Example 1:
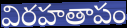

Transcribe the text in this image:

విరహతాపం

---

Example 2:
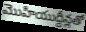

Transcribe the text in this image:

మొహియుద్దీన్లతో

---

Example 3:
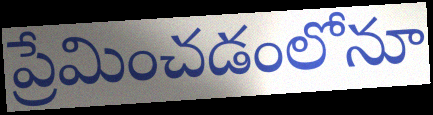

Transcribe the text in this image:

ప్రేమించడంలోనూ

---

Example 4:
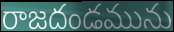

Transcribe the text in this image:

రాజదండమును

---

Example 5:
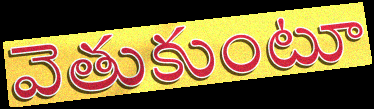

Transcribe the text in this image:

వెతుకుంటూ